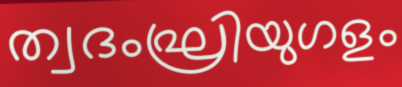
ത്വദംഘ്രിയുഗളം